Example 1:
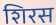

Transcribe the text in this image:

शिरस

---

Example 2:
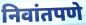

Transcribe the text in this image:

निवांतपणे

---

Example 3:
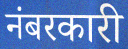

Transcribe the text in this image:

नंबरकारी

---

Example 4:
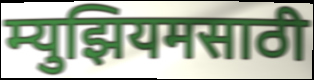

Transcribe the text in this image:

म्युझियमसाठी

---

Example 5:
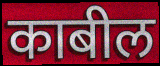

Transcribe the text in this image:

काबील